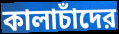
কালাচাঁদের